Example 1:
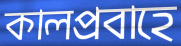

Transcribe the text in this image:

কালপ্রবাহে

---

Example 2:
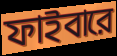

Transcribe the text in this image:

ফাইবারে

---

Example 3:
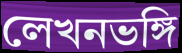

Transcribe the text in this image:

লেখনভঙ্গি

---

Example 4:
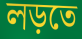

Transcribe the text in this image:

লড়তে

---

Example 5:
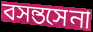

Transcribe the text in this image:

বসন্তসেনা